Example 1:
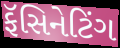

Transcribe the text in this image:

ફૅસિનેટિંગ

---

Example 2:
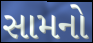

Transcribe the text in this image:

સામનો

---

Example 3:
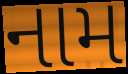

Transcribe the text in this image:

નામ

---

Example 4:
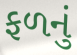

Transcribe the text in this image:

ફળનું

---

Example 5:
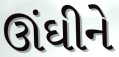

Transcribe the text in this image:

ઊંઘીને